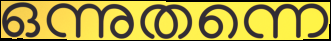
ഒന്നുതന്നെ